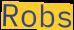
Robs